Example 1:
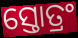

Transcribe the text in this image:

ସ୍ତୋତ୍ରଂ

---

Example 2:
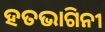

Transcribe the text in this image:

ହତଭାଗିନୀ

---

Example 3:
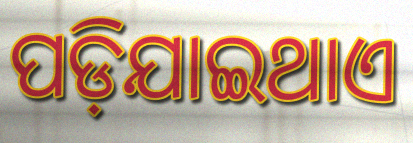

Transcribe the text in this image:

ପଡ଼ିଯାଇଥାଏ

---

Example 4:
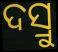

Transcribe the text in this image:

ଦସ୍ରୁ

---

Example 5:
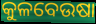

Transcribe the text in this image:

କୁଳବେଉଷା